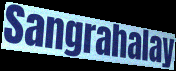
Sangrahalay